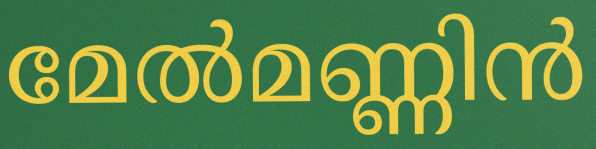
മേൽമണ്ണിൻ